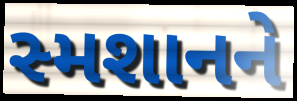
સ્મશાનને